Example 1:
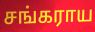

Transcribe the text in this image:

சங்கராய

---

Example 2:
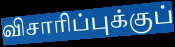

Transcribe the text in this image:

விசாரிப்புக்குப்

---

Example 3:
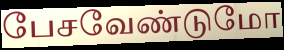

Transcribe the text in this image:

பேசவேண்டுமோ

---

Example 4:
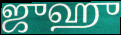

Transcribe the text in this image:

ஜுஹு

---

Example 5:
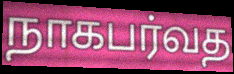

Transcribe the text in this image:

நாகபர்வத